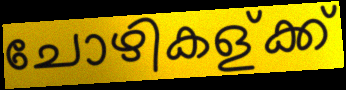
ചോഴികള്ക്ക്